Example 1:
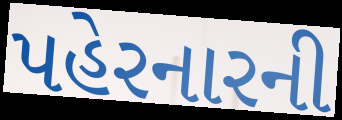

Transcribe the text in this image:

પહેરનારની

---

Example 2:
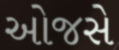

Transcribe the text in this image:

ઓજસે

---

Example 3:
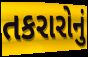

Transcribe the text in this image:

તકરારોનું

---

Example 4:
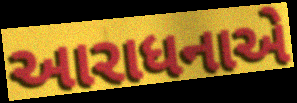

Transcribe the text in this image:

આરાધનાએ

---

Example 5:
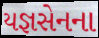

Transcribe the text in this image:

યજ્ઞસેનના